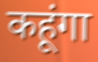
कहूंगा